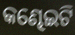
କଣ୍ଢେଇଟି